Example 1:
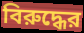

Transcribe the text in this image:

বিরুদ্ধের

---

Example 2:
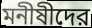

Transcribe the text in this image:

মনীষীদের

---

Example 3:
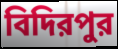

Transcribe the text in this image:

বিদিরপুর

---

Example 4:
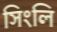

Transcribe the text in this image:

সিংলি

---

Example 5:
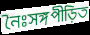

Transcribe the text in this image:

নৈঃসঙ্গপীড়িত